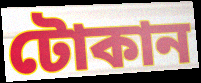
টোকান